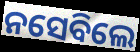
ନସେବିଲେ